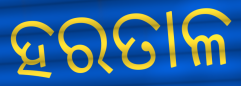
ହରତାଳ